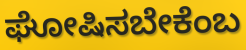
ಘೋಷಿಸಬೇಕೆಂಬ